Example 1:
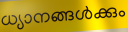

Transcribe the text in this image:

ധ്യാനങ്ങൾക്കും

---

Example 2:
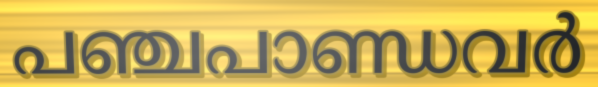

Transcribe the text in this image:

പഞ്ചപാണ്ഡവർ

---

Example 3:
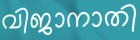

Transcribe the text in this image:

വിജാനാതി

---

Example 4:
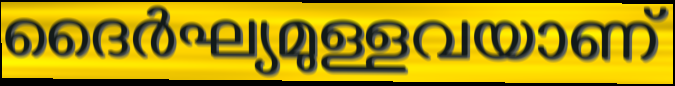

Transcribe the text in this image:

ദൈർഘ്യമുള്ളവയാണ്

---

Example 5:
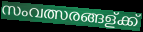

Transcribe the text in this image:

സംവത്സരങ്ങള്ക്ക്